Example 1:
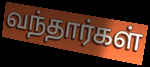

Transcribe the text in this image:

வந்தார்கள்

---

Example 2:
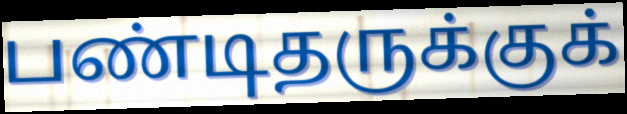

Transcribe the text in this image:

பண்டிதருக்குக்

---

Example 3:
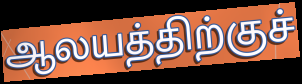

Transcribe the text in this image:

ஆலயத்திற்குச்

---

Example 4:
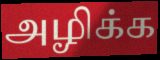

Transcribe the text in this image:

அழிக்க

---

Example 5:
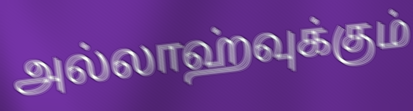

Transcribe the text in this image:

அல்லாஹ்வுக்கும்